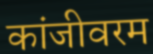
कांजीवरम